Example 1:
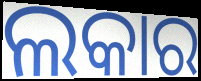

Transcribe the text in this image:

ଲକାର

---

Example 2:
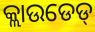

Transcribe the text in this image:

କ୍ଲାଉଡେଡ୍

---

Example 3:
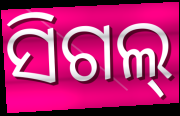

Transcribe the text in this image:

ସିଗଲ୍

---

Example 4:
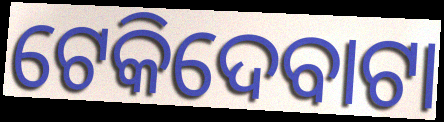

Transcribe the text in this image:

ଟେକିଦେବାଟା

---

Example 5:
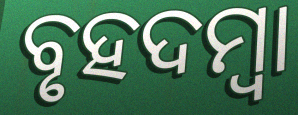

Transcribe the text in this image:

ବୃହଦମ୍ବା